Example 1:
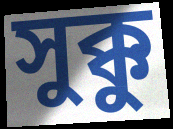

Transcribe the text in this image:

সুক্কু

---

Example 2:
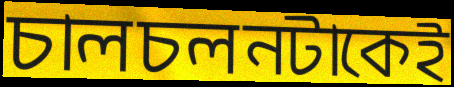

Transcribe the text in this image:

চালচলনটাকেই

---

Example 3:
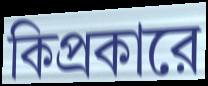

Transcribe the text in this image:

কিপ্রকারে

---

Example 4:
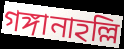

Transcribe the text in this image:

গঙ্গানাহল্লি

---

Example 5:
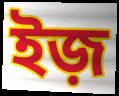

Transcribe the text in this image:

ইজ়